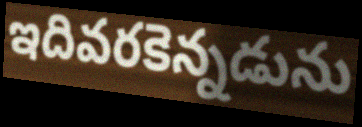
ఇదివరకెన్నడును